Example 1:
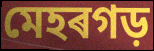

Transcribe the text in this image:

মেহৰগড়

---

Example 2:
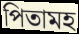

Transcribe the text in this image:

পিতামহ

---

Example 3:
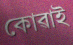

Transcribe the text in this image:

কোৱাই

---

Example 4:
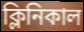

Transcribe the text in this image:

ক্লিনিকাল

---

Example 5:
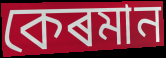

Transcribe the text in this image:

কেৰমান